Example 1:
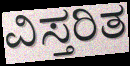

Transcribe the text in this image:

ವಿಸ್ತರಿತ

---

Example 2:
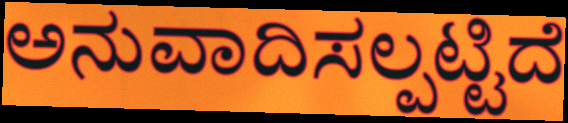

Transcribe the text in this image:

ಅನುವಾದಿಸಲ್ಪಟ್ಟಿದೆ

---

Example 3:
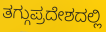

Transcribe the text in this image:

ತಗ್ಗುಪ್ರದೇಶದಲ್ಲಿ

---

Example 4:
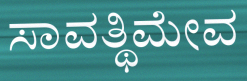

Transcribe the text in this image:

ಸಾವತ್ಥಿಮೇವ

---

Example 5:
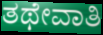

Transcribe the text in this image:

ತಥೇವಾತಿ